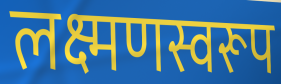
लक्ष्मणस्वरूप